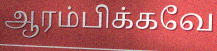
ஆரம்பிக்கவே